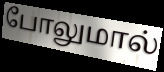
போலுமால்